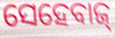
ସେହେବାଜ୍